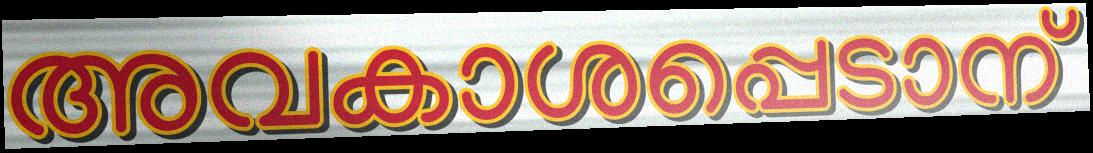
അവകാശപ്പെടാന്